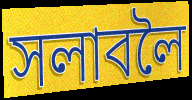
সলাবলৈ